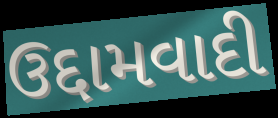
ઉદ્દામવાદી